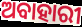
ଅବାହାରୀ